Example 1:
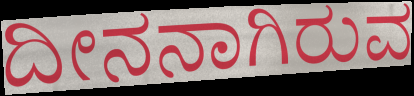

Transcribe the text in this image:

ದೀನನಾಗಿರುವ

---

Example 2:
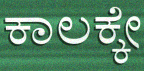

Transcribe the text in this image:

ಕಾಲಕ್ಕೇ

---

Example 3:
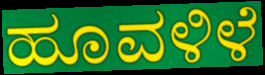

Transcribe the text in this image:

ಹೂವಳಿಳೆ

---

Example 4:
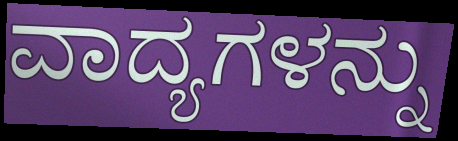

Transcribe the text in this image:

ವಾದ್ಯಗಳನ್ನು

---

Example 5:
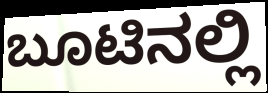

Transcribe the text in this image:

ಬೂಟಿನಲ್ಲಿ